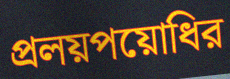
প্রলয়পয়োধির